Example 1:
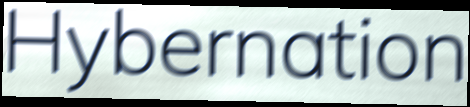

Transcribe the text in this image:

Hybernation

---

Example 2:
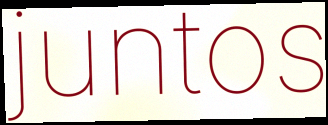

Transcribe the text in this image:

juntos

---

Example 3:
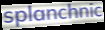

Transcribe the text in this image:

splanchnic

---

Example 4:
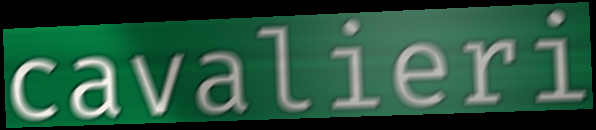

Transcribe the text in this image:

cavalieri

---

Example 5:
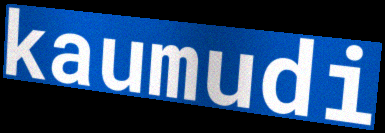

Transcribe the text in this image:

kaumudi